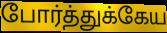
போர்த்துக்கேய